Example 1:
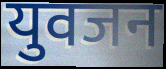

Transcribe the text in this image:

युवजन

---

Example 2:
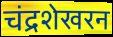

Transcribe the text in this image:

चंद्रशेखरन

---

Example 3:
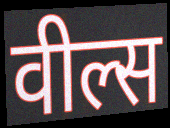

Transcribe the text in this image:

वील्स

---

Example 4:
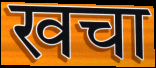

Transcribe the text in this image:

खचा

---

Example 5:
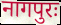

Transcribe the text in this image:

नागपुरः